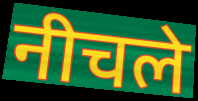
नीचले